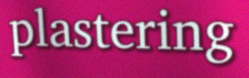
plastering